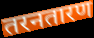
तरनतारण